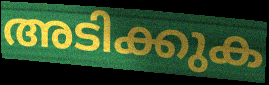
അടിക്കുക